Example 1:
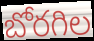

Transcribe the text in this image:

బోరగిల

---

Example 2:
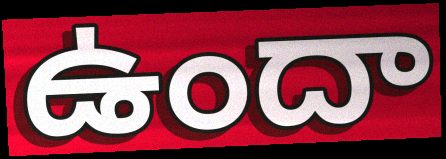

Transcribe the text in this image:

ఉందా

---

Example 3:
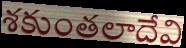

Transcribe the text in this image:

శకుంతలాదేవి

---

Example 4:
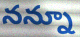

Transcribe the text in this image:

నన్నూ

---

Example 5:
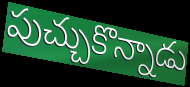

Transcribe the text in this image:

పుచ్చుకొన్నాడు